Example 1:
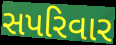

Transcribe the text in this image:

સપરિવાર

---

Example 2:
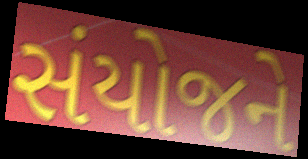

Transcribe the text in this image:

સંયોજને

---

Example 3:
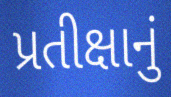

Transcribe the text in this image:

પ્રતીક્ષાનું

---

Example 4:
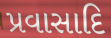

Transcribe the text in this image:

પ્રવાસાદિ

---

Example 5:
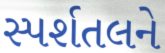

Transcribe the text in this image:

સ્પર્શતલને